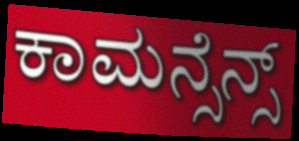
ಕಾಮನ್ಸೆನ್ಸ್